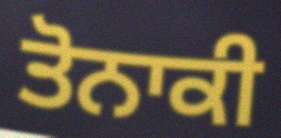
ਤੋਨਾਕੀ